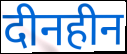
दीनहीन